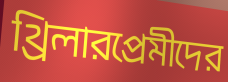
থ্রিলারপ্রেমীদের